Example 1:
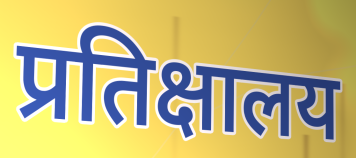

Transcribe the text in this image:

प्रतिक्षालय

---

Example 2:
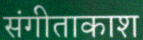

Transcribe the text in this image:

संगीताकाश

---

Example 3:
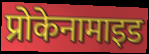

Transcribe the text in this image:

प्रोकेनामाइड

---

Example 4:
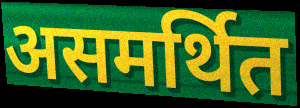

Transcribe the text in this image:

असमर्थित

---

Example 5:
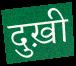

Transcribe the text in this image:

दुख़ी